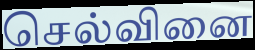
செல்வினை